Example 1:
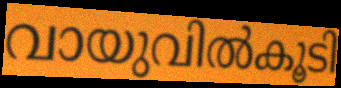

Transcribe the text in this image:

വായുവിൽകൂടി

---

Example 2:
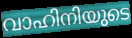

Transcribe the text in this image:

വാഹിനിയുടെ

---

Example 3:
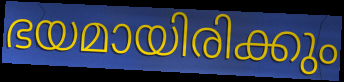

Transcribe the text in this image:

ഭയമായിരിക്കും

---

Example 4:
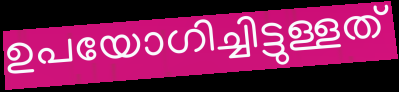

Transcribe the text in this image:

ഉപയോഗിച്ചിട്ടുള്ളത്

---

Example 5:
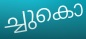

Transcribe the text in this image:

ച്ചുകൊ